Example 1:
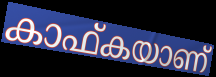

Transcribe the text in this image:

കാഫ്കയാണ്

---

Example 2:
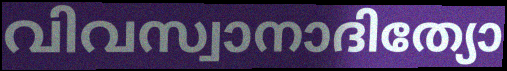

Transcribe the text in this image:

വിവസ്വാനാദിത്യോ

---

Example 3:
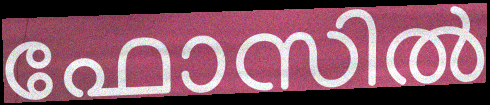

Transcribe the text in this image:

ഫോസിൽ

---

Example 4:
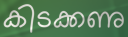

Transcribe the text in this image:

കിടക്കണു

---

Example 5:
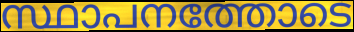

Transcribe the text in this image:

സ്ഥാപനത്തോടെ